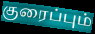
குரைப்பும்